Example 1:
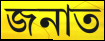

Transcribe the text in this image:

জনাত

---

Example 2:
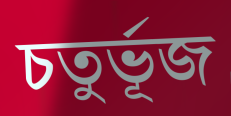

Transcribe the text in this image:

চতুৰ্ভূজ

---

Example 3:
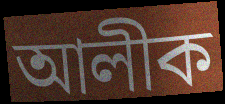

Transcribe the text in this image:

আলীক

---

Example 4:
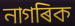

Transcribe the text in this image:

নাগৰিক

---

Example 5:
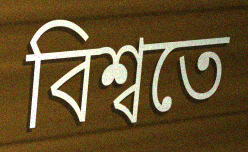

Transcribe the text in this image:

বিশ্বতে